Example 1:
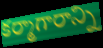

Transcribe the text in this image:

కర్మాగారాన్ని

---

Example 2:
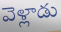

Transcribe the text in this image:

వెళ్లాడు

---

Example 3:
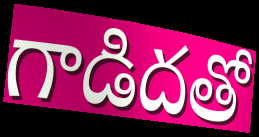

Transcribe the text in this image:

గాడిదతో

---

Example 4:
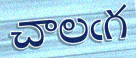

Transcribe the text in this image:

చాలఁగ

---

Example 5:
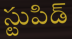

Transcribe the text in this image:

స్టుపిడ్